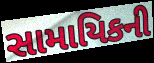
સામાયિકની